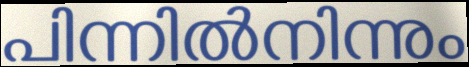
പിന്നിൽനിന്നും